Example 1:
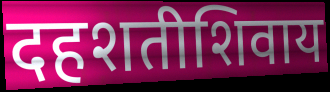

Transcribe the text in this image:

दहशतीशिवाय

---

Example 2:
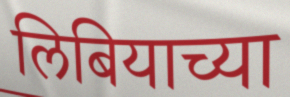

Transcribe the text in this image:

लिबियाच्या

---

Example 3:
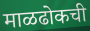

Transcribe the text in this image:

माळढोकची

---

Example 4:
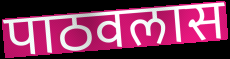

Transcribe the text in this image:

पाठवलास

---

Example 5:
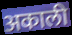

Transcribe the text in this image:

अकाली